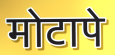
मोटापे